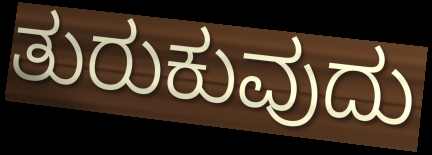
ತುರುಕುವುದು